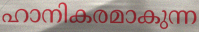
ഹാനികരമാകുന്ന